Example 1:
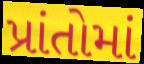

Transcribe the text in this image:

પ્રાંતોમાં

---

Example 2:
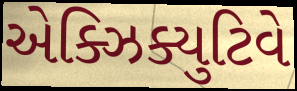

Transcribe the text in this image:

એક્ઝિક્યુટિવે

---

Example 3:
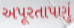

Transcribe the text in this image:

અપૂરતાપણું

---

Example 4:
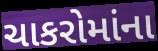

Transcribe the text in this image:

ચાકરોમાંના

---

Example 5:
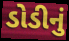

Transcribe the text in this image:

ડોડીનું